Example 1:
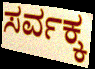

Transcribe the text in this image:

ಸರ್ವಕ್ಕ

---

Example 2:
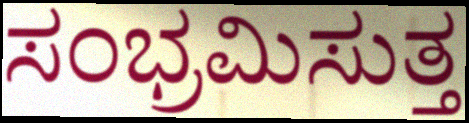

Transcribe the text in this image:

ಸಂಭ್ರಮಿಸುತ್ತ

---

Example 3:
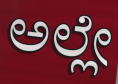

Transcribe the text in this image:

ಅಲ್ಲೇ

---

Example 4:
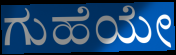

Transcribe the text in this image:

ಗುಹೆಯೇ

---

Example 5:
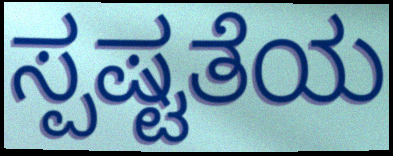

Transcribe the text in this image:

ಸ್ಪಷ್ಟತೆಯ